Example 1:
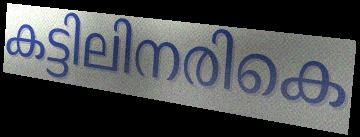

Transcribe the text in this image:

കട്ടിലിനരികെ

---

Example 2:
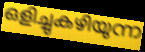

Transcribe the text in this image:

ഒളിച്ചുകഴിയുന്ന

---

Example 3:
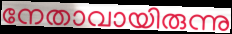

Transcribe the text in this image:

നേതാവായിരുന്നു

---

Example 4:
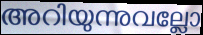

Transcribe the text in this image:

അറിയുന്നുവല്ലോ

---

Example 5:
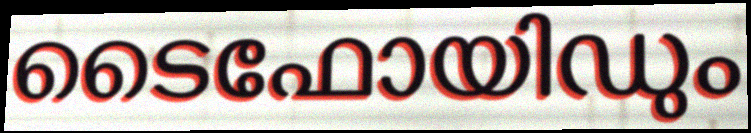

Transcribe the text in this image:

ടൈഫോയിഡും